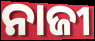
ନାଜୀ